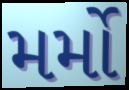
મર્મો